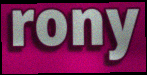
rony